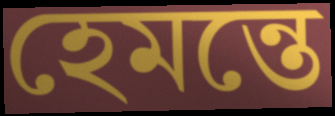
হেমন্তে